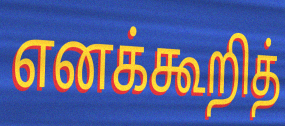
எனக்கூறித்